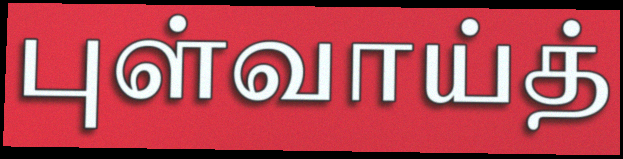
புள்வாய்த்